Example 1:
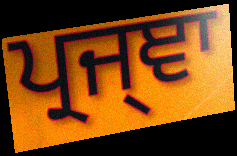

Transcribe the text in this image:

ਪ੍ਰਜ੍ਞਾ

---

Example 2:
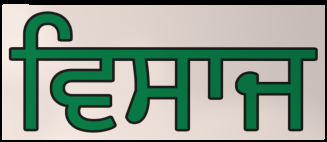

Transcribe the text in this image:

ਵਿਸਾਜ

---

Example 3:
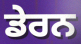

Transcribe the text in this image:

ਡੇਰਨ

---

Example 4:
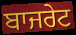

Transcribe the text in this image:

ਬਾਜਰੇਟ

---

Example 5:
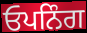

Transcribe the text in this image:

ਓਪਨਿੰਗ